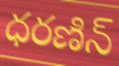
ధరణిన్